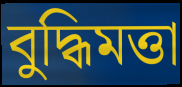
বুদ্ধিমত্তা